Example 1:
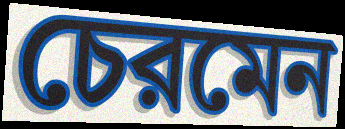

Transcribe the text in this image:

চেরমেন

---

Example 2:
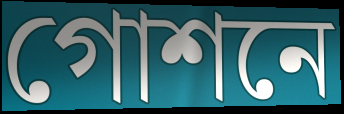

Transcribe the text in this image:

গোশনে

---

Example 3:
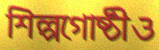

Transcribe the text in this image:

শিল্পগোষ্ঠীও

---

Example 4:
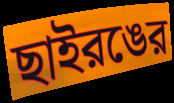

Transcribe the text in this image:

ছাইরঙের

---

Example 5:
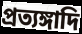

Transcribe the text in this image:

প্রত্যঙ্গাদি